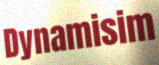
Dynamisim